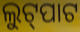
ଲୁଟ୍‍ପାଟ